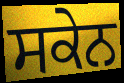
ਸਕੇਨ